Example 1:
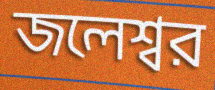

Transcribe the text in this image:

জলেশ্বর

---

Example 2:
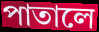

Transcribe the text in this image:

পাতালে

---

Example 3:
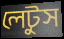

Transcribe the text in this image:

লেটুস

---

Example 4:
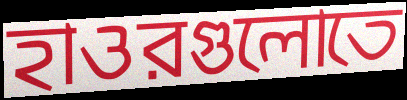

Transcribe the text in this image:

হাওরগুলোতে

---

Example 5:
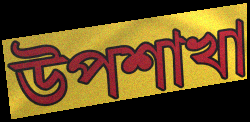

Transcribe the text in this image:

উপশাখা